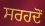
ਸਰਹਦੋਂ